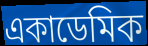
একাডেমিক